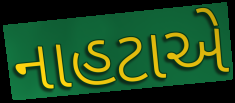
નાહટાએ